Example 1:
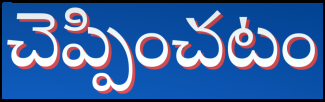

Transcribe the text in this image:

చెప్పించటం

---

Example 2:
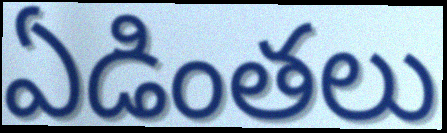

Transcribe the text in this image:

ఏడింతలు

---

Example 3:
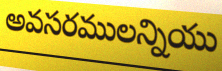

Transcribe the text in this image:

అవసరములన్నియు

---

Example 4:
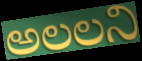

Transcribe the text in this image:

అలలని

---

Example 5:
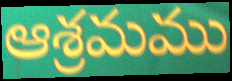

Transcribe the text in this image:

ఆశ్రమము